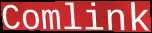
Comlink